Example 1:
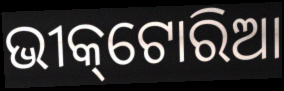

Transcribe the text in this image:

ଭୀକ୍‌ଟୋରିଆ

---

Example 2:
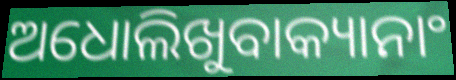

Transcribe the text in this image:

ଅଧୋଲିଖୁବାକ୍ୟାନାଂ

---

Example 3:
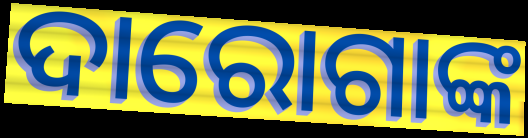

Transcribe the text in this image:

ଦାରୋଗାଙ୍କ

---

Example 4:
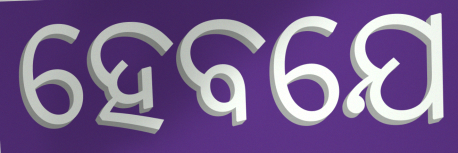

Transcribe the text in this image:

ହେବଯେ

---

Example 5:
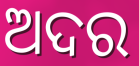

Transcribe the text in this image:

ଅଦର